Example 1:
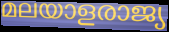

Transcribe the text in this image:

മലയാളരാജ്യ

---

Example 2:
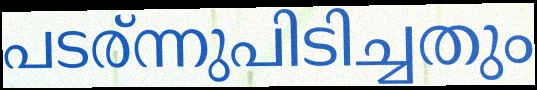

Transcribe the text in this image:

പടര്ന്നുപിടിച്ചതും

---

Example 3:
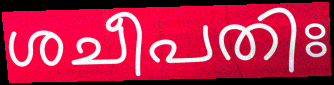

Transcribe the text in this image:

ശചീപതിഃ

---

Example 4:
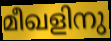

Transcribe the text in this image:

മീഖളിനു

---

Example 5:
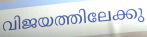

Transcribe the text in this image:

വിജയത്തിലേക്കു